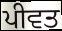
ਪੀਵਤ